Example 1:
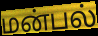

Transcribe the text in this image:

மன்பல்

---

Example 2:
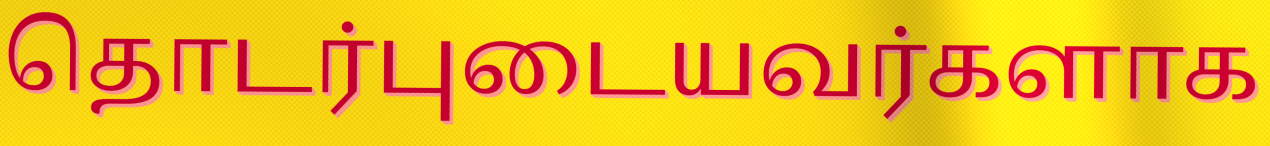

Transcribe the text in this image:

தொடர்புடையவர்களாக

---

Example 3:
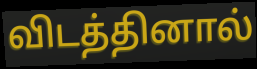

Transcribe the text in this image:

விடத்தினால்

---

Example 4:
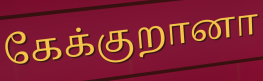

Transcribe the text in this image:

கேக்குறானா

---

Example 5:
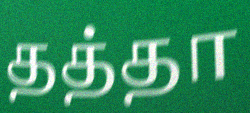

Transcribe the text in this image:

தத்தா